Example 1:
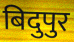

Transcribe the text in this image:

बिदुपुर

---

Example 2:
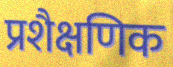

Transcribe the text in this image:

प्रशैक्षणिक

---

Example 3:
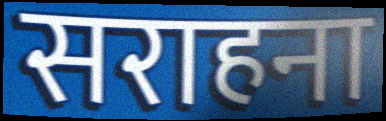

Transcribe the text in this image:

सराहना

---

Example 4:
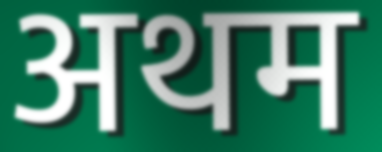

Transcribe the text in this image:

अथम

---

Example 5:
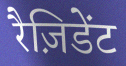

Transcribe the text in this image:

रैज़िडेंट